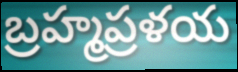
బ్రహ్మప్రళయ